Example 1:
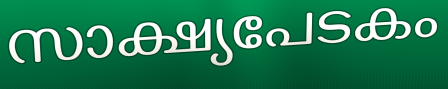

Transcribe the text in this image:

സാക്ഷ്യപേടകം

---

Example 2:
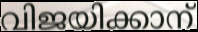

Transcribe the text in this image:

വിജയിക്കാന്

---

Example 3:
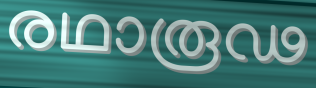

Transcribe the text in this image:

രഥാരൂഢ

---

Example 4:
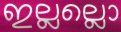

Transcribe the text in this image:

ഇല്ലല്ലൊ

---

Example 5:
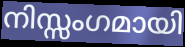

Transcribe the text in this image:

നിസ്സംഗമായി